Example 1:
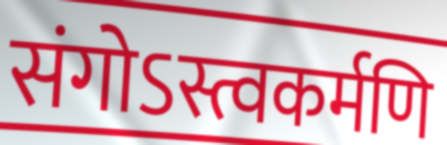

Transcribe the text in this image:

संगोऽस्त्वकर्मणि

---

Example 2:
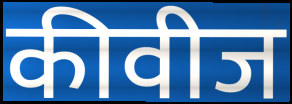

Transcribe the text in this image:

कीवीज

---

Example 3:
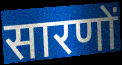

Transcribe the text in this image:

सारणों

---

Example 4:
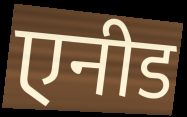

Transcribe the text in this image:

एनीड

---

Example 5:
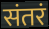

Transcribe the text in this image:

संतरं